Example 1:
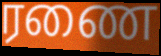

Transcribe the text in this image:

ரணை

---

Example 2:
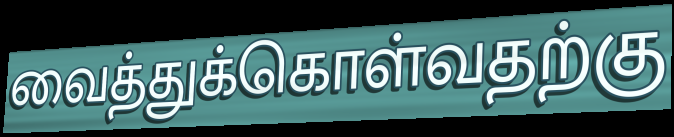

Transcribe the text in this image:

வைத்துக்கொள்வதற்கு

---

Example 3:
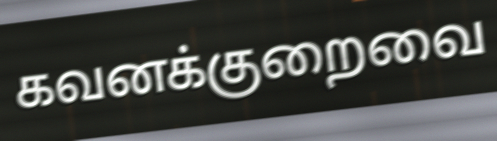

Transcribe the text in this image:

கவனக்குறைவை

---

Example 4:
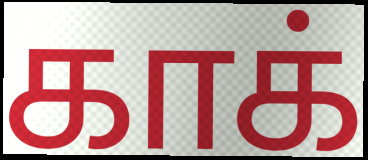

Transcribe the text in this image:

காக்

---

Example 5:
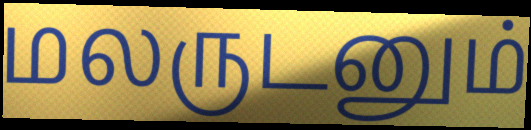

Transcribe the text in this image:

மலருடனும்